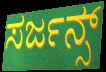
ಸರ್ಜನ್ಸ್